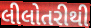
લીલોતરીથી